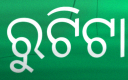
ରୁଟିଟା